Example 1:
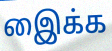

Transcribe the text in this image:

இைக்க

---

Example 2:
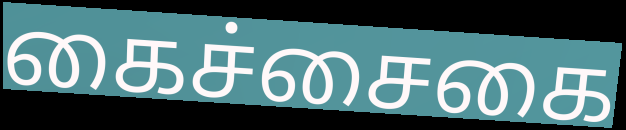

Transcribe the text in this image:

கைச்சைகை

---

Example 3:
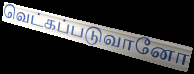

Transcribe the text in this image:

வெட்கப்படுவானோ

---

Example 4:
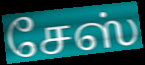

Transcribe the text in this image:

சேஸ்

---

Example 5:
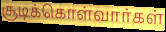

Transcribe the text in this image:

சூடிக்கொள்வார்கள்